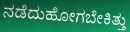
ನಡೆದುಹೋಗಬೇಕಿತ್ತು